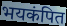
भयकंपित